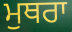
ਮੁਥਰਾ